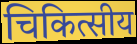
चिकित्सीय